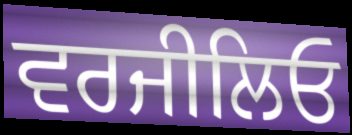
ਵਰਜੀਲਿਓ